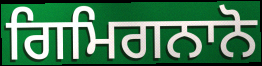
ਗਿਮਿਗਨਾਨੋ